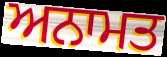
ਅਨਾਮਤ